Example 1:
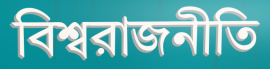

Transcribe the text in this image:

বিশ্বরাজনীতি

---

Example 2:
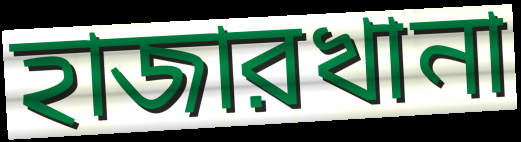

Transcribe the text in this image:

হাজারখানা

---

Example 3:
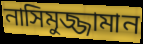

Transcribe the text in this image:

নাসিমুজ্জামান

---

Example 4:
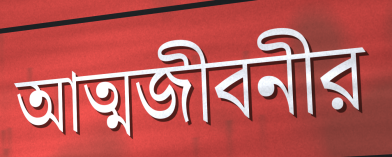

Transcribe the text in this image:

আত্মজীবনীর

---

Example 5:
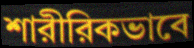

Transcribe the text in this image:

শারীরিকভাবে